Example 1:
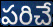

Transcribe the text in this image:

పరిచే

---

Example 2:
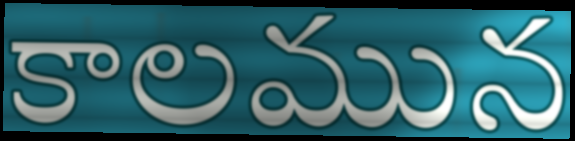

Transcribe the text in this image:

కాలమున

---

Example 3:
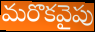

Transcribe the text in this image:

మరొకవైపు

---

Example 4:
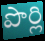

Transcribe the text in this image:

పొర్లి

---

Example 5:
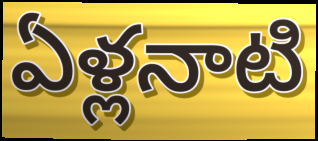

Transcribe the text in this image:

ఏళ్లనాటి